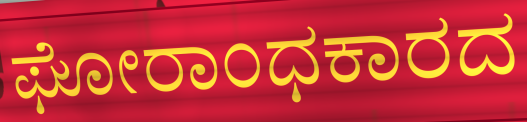
ಘೋರಾಂಧಕಾರದ